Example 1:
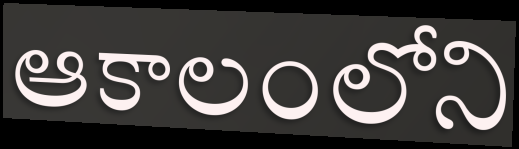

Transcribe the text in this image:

ఆకాలంలోని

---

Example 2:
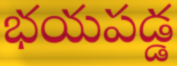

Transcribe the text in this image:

భయపడ్డ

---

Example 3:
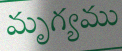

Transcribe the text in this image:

మృగ్యము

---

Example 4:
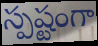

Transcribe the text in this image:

స్పష్టంగా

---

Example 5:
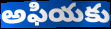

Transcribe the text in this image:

అఫియకు